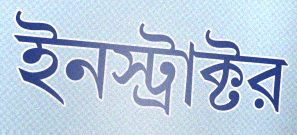
ইনস্ট্রাক্টর